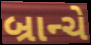
બ્રાન્ચે